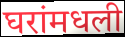
घरांमधली